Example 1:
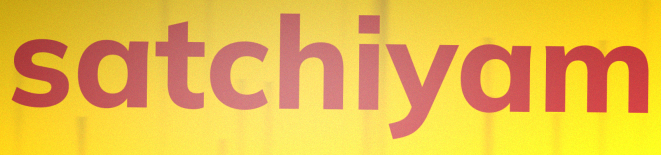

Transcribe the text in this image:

satchiyam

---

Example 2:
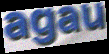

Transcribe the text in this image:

agau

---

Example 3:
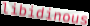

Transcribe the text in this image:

libidinous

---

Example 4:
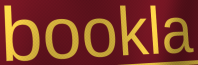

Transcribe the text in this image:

bookla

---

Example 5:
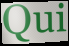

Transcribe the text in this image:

Qui